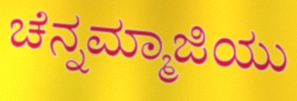
ಚೆನ್ನಮ್ಮಾಜಿಯು